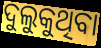
ଦୁଲୁକୁଥିବା